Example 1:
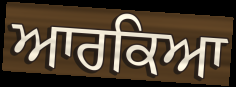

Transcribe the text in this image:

ਆਰਕਿਆ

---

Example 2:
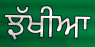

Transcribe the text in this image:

ਝੱਖੀਆ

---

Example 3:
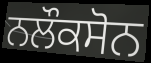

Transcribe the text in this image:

ਨਲੌਕਸੋਨ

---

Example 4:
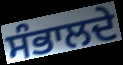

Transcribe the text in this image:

ਸੰਭਾਲਦੇ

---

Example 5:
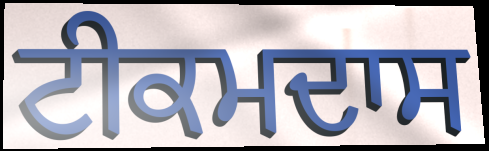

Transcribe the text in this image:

ਟੀਕਮਦਾਸ